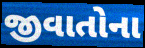
જીવાતોના